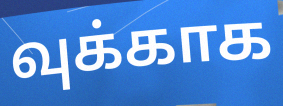
வுக்காக